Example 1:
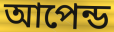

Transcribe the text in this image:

আপেন্ড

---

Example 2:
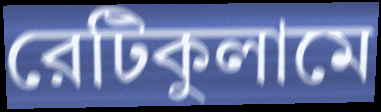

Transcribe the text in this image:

রেটিকুলামে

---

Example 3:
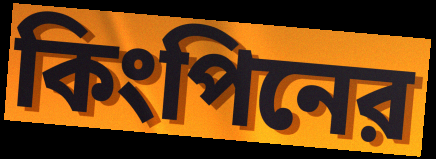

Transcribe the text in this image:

কিংপিনের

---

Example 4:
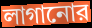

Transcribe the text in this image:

লাগানোর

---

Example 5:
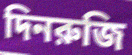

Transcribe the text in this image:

দিনরুজি